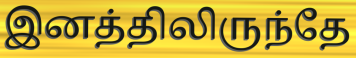
இனத்திலிருந்தே